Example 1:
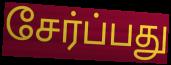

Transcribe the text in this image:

சேர்ப்பது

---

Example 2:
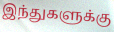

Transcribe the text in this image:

இந்துகளுக்கு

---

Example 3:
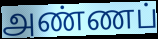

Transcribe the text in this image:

அண்ணப்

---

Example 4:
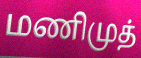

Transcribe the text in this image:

மணிமுத்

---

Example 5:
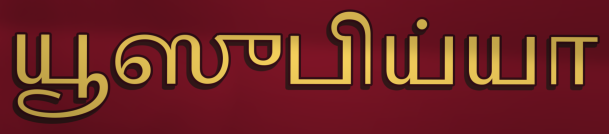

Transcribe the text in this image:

யூஸுபிய்யா